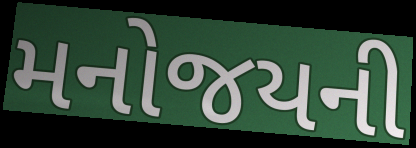
મનોજયની